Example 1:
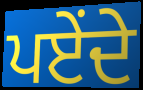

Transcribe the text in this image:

ਪਏਂਦੇ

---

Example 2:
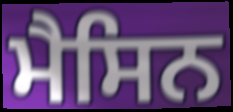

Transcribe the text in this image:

ਮੈਸਿਨ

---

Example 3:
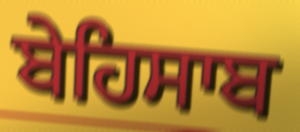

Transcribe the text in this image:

ਬੇਹਿਸਾਬ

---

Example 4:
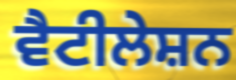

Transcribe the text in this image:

ਵੈਟੀਲੇਸ਼ਨ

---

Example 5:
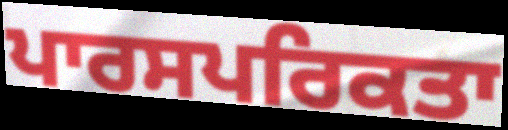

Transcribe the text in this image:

ਪਾਰਸਪਰਿਕਤਾ